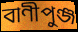
বাণীপুঞ্জ